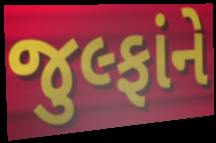
જુલ્ફાંને